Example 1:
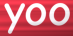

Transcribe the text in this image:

yoo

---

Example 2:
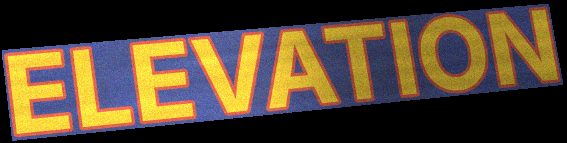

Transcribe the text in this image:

ELEVATION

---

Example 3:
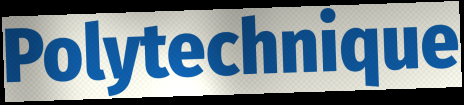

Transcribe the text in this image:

Polytechnique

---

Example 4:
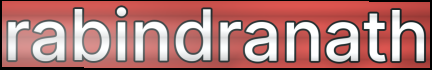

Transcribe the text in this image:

rabindranath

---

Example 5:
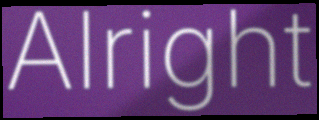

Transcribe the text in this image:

Alright